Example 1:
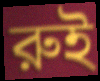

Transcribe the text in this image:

রুই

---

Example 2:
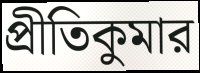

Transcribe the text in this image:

প্রীতিকুমার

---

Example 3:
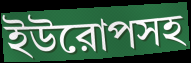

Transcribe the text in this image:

ইউরোপসহ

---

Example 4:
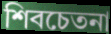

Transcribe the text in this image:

শিবচেতনা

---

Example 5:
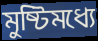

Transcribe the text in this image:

মুষ্টিমধ্যে